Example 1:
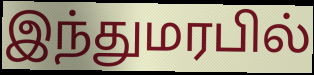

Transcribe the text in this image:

இந்துமரபில்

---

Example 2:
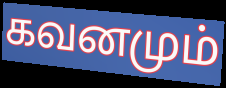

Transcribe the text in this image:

கவனமும்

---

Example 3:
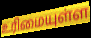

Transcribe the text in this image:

உரிமையுள்ள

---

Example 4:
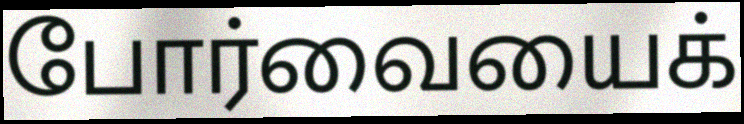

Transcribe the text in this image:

போர்வையைக்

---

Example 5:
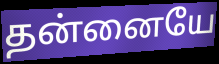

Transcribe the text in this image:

தன்னையே